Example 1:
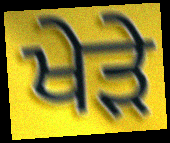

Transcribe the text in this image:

ਖੇੜੇ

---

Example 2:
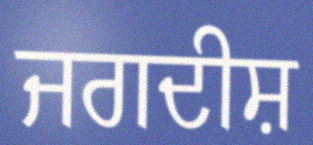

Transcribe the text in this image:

ਜਗਦੀਸ਼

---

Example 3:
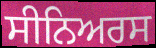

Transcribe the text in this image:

ਸੀਨਿਅਰਸ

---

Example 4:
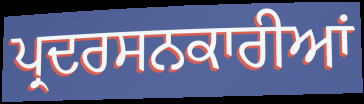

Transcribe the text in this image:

ਪ੍ਰਦਰਸਨਕਾਰੀਆਂ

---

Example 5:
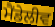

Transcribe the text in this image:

ਮੈਂਡੇਲੀਵ